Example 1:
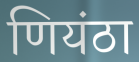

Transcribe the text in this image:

णियंठा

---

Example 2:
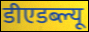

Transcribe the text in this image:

डीएडब्ल्यू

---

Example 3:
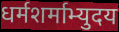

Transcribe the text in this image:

धर्मशर्माभ्युदय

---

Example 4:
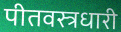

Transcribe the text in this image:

पीतवस्त्रधारी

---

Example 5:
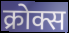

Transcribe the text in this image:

क्रोक्स